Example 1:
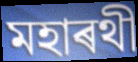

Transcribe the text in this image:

মহাৰথী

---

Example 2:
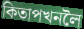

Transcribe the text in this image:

কিতাপখনলৈ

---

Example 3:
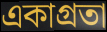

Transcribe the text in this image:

একাগ্ৰতা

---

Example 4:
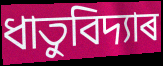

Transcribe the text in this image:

ধাতুবিদ্যাৰ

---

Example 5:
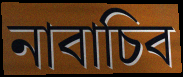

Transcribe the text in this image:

নাবাচিব